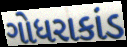
ગોધરાકાંડ